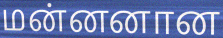
மன்னனான